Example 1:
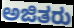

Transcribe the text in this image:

ಅಜಿತರು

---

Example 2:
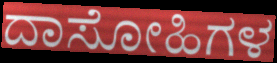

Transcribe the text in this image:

ದಾಸೋಹಿಗಳ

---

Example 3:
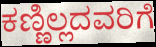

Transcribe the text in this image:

ಕಣ್ಣಿಲ್ಲದವರಿಗೆ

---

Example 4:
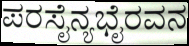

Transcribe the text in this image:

ಪರಸೈನ್ಯಭೈರವನ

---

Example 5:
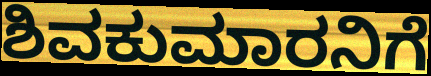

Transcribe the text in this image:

ಶಿವಕುಮಾರನಿಗೆ